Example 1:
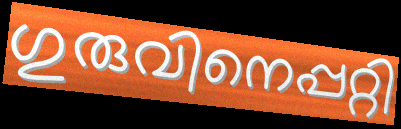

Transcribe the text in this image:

ഗുരുവിനെപ്പറ്റി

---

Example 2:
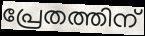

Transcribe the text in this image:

പ്രേതത്തിന്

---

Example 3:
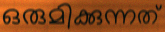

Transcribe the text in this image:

ഒരുമിക്കുന്നത്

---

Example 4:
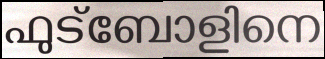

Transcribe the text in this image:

ഫുട്ബോളിനെ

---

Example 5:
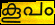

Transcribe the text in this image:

കൂപം